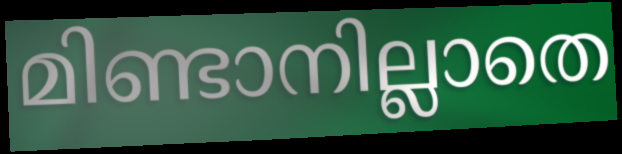
മിണ്ടാനില്ലാതെ